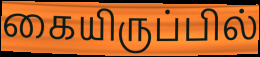
கையிருப்பில்